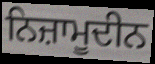
ਨਿਜ਼ਾਮੂਦੀਨ